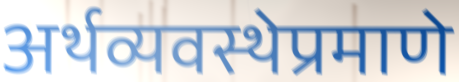
अर्थव्यवस्थेप्रमाणे